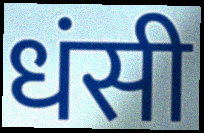
धंसी